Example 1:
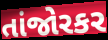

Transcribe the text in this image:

તાંજોરકર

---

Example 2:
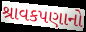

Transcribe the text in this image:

શ્રાવકપણાનો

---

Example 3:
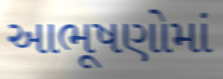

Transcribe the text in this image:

આભૂષણોમાં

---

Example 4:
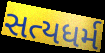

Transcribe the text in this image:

સત્યધર્મ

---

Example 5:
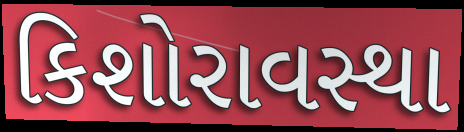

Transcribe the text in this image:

કિશોરાવસ્થા